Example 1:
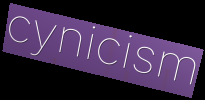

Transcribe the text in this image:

cynicism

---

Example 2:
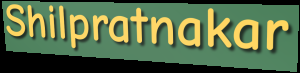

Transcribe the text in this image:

Shilpratnakar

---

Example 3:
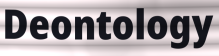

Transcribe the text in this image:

Deontology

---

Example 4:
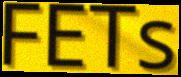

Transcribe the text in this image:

FETs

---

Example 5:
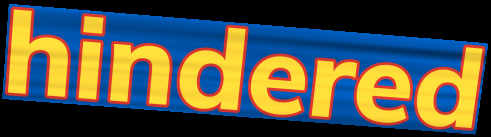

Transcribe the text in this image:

hindered